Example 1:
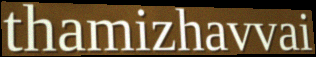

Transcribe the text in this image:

thamizhavvai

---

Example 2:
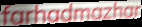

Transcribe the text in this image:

farhadmazhar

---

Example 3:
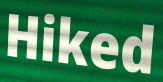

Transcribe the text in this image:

Hiked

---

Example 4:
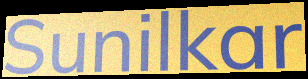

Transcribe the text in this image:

Sunilkar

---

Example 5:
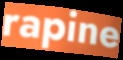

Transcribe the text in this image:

rapine